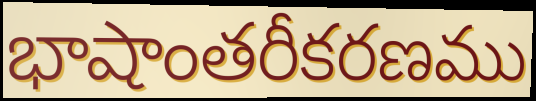
భాషాంతరీకరణము